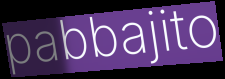
pabbajito